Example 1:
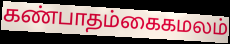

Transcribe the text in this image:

கண்பாதம்கைகமலம்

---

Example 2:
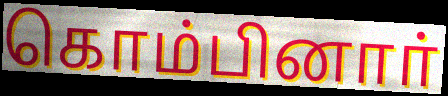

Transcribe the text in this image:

கொம்பினார்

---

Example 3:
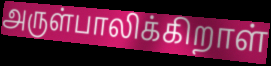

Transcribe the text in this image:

அருள்பாலிக்கிறாள்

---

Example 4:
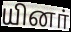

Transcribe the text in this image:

யினர்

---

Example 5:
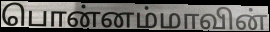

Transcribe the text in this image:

பொன்னம்மாவின்